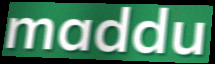
maddu